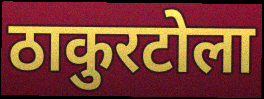
ठाकुरटोला